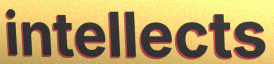
intellects